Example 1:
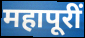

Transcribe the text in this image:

महापूरीं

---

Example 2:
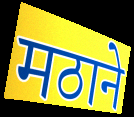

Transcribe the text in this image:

मठाने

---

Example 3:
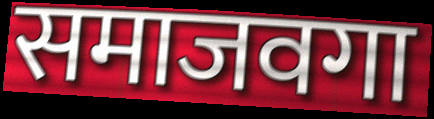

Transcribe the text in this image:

समाजवगा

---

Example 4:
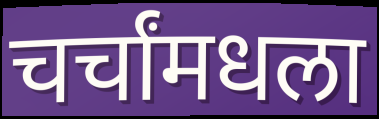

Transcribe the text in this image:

चर्चांमधला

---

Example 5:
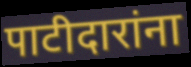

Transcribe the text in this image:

पाटीदारांना